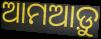
ଆମଆଡ଼ୁ